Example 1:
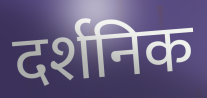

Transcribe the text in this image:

दर्शनिक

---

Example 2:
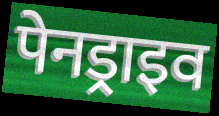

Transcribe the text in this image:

पेनड्राइव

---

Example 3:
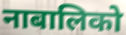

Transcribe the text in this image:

नाबालिको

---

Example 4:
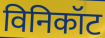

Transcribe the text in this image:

विनिकॉट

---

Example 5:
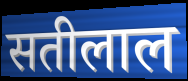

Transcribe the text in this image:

सतीलाल